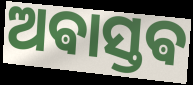
ଅଵାସ୍ତଵ